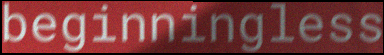
beginningless